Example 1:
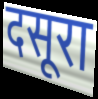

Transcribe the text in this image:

दसूरा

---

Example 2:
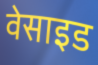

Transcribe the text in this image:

वेसाइड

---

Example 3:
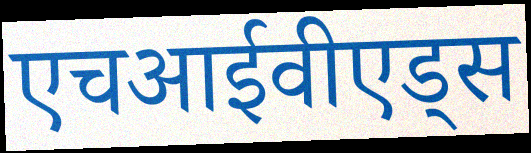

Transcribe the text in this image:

एचआईवीएड्स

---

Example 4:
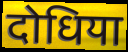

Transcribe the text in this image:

दोधिया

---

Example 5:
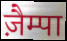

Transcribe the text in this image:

ज़ैम्पा